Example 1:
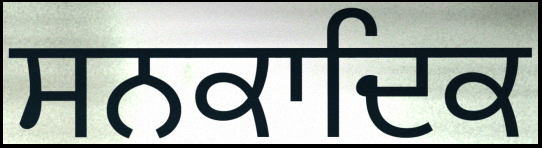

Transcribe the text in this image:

ਸਨਕਾਦਿਕ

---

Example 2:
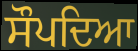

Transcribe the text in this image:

ਸੌਪਦਿਆ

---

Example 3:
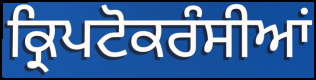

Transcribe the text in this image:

ਕ੍ਰਿਪਟੋਕਰੰਸੀਆਂ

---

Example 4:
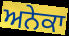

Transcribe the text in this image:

ਅਨੇਕਾ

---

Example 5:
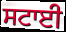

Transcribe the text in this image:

ਸਟਾਈ